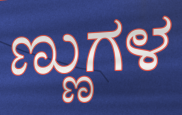
ಣ್ಣುಗಳ